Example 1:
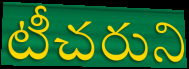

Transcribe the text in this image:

టీచరుని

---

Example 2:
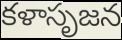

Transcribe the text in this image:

కళాసృజన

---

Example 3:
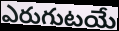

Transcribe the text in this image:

ఎరుగుటయే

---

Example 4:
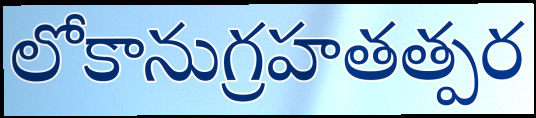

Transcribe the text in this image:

లోకానుగ్రహతత్పర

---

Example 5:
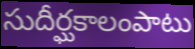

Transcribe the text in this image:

సుదీర్ఘకాలంపాటు